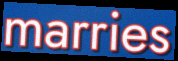
marries